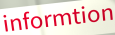
informtion